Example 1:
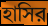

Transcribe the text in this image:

হাসির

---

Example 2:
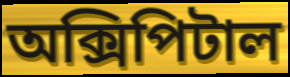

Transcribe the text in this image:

অক্সিপিটাল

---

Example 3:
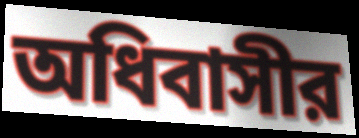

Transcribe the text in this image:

অধিবাসীর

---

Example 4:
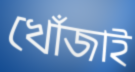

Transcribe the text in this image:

খোঁজাই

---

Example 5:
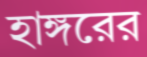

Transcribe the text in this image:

হাঙ্গরের